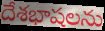
దేశభాషలను